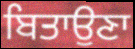
ਬਿਤਾਉਣਾ